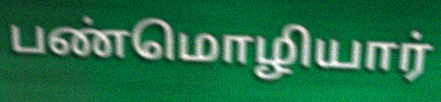
பண்மொழியார்